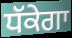
ਧੱਕੇਗਾ